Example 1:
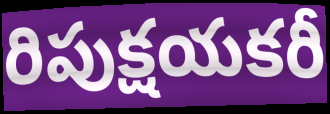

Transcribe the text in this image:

రిపుక్షయకరీ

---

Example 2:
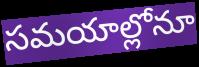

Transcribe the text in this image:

సమయాల్లోనూ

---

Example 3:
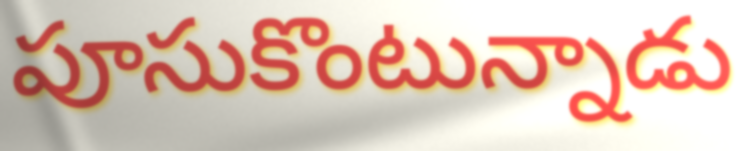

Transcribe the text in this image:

పూసుకొంటున్నాడు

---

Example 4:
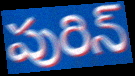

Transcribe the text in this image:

పురిన్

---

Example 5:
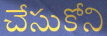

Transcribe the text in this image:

చేసుకోని